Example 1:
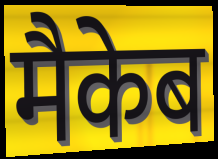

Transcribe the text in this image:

मैकेब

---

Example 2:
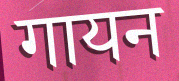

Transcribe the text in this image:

गायन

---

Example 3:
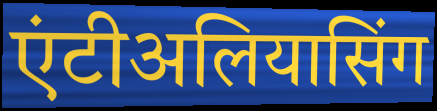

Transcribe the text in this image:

एंटीअलियासिंग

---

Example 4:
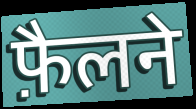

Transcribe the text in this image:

फ़ैलने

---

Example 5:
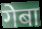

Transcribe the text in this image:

गेबा